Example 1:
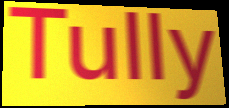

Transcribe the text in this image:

Tully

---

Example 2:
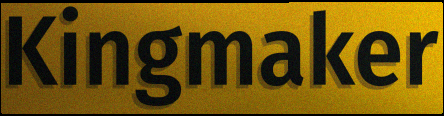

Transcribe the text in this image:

Kingmaker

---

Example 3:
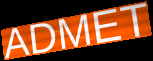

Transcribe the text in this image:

ADMET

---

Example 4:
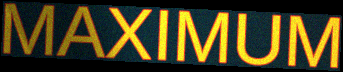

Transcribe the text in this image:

MAXIMUM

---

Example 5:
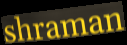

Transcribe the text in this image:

shraman